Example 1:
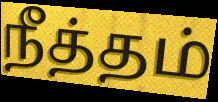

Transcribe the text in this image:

நீத்தம்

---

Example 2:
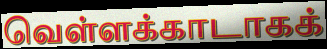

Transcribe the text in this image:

வெள்ளக்காடாகக்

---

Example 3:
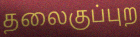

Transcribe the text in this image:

தலைகுப்புற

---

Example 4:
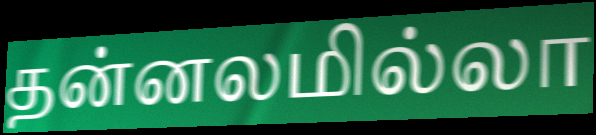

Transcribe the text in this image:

தன்னலமில்லா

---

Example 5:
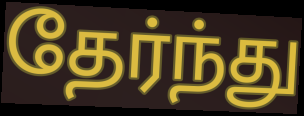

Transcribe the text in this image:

தேர்ந்து